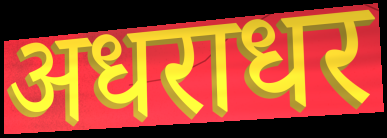
अधराधर